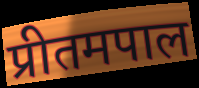
प्रीतमपाल